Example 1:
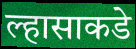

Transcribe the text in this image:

ल्हासाकडे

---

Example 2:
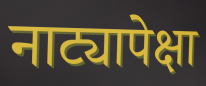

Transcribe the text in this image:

नाट्यापेक्षा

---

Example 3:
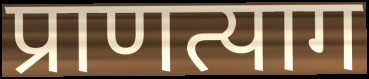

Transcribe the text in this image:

प्राणत्याग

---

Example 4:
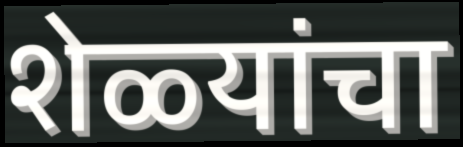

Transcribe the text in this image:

शेळ्यांचा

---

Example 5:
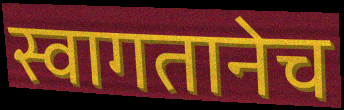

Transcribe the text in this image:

स्वागतानेच